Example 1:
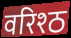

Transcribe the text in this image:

वरिश्ठ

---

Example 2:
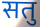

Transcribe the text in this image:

सतु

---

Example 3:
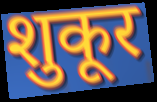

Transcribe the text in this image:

शुकूर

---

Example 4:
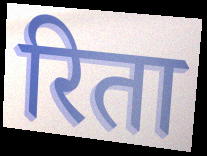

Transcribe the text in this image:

रिता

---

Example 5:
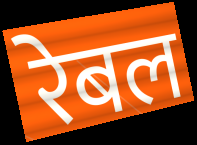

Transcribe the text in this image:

रेबल